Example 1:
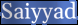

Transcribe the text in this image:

Saiyyad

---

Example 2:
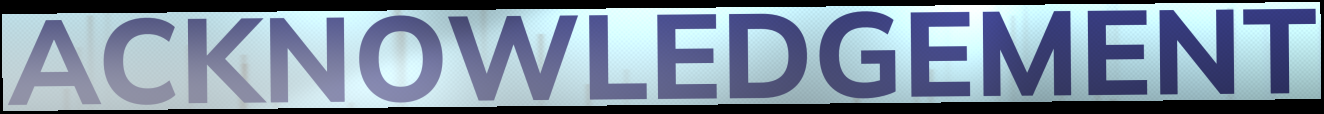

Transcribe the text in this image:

ACKNOWLEDGEMENT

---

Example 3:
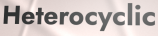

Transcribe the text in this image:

Heterocyclic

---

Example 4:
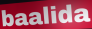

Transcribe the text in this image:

baalida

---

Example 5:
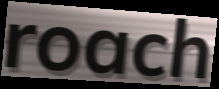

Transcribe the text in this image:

roach